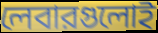
লেবারগুলোই